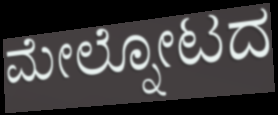
ಮೇಲ್ನೋಟದ